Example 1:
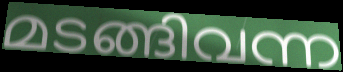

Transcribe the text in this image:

മടങ്ങിവന്ന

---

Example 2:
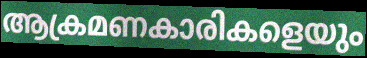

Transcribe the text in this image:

ആക്രമണകാരികളെയും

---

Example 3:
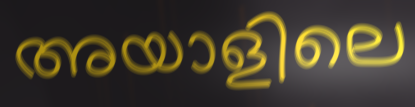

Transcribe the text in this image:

അയാളിലെ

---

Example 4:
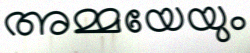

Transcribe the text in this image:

അമ്മയേയും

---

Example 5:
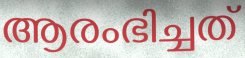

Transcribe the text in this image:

ആരംഭിച്ചത്